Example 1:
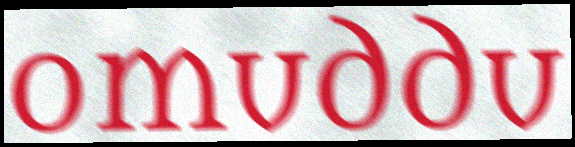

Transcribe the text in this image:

omuddu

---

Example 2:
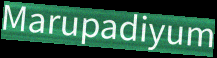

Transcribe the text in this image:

Marupadiyum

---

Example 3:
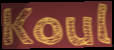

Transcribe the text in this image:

Koul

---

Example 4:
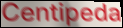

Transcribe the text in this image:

Centipeda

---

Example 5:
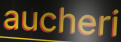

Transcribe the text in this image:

aucheri